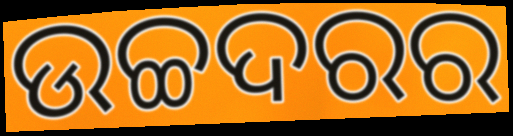
ଉଚ୍ଚଦରର